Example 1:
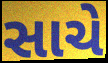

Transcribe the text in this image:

સાચે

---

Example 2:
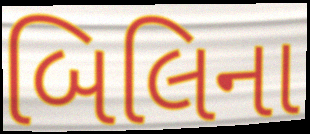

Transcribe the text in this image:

બિલિના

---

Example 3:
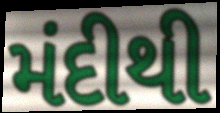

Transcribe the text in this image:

મંદીથી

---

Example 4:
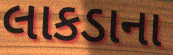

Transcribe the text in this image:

લાકડાના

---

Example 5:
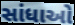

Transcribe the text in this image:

સાંધાઓ